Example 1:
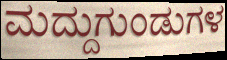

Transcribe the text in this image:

ಮದ್ದುಗುಂಡುಗಳ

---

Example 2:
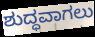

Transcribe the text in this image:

ಶುದ್ಧವಾಗಲು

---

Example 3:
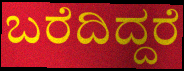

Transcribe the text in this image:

ಬರೆದಿದ್ದರೆ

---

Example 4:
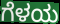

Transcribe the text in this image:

ಗೆಳಯ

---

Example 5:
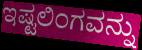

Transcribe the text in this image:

ಇಷ್ಟಲಿಂಗವನ್ನು